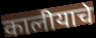
कालीयाचे